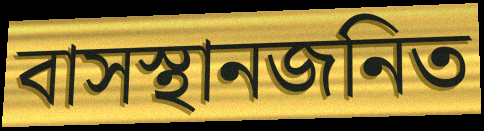
বাসস্থানজনিত